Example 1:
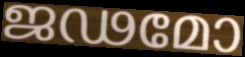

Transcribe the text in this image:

ജഢമോ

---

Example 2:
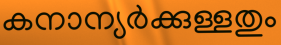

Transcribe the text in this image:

കനാന്യർക്കുള്ളതും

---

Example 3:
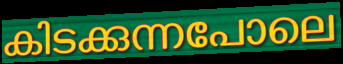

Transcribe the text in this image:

കിടക്കുന്നപോലെ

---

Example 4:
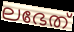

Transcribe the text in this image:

ലഭേത്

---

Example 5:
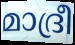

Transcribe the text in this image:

മാദ്രീ